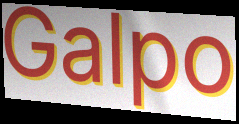
Galpo